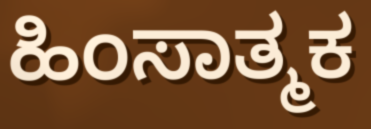
ಹಿಂಸಾತ್ಮಕ